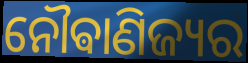
ନୌଵାଣିଜ୍ୟର